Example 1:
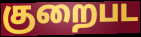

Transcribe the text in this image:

குறைபட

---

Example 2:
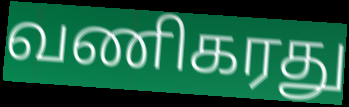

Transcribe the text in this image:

வணிகரது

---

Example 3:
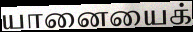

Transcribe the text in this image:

யானையைக்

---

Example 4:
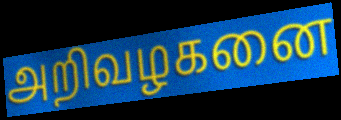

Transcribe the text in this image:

அறிவழகனை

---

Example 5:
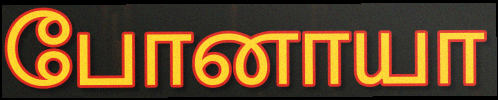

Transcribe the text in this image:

போனாயா